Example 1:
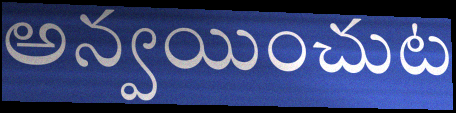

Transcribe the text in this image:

అన్వయించుట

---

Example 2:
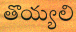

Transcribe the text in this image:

తొయ్యలి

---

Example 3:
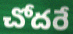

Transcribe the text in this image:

చోదరే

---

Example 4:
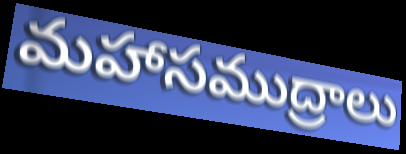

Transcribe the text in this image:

మహాసముద్రాలు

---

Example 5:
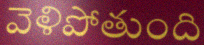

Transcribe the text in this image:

వెళిపోతుంది